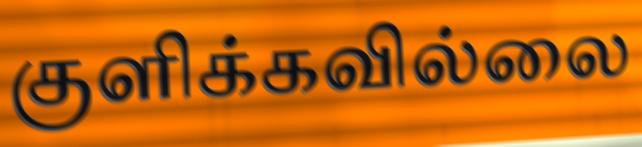
குளிக்கவில்லை